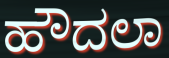
ಹೌದಲಾ